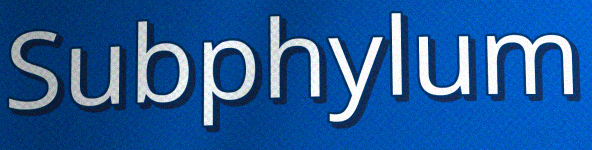
Subphylum